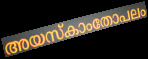
അയസ്കാംതോപലം